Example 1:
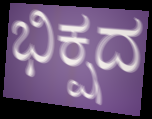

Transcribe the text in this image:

ಭಿಕ್ಷದ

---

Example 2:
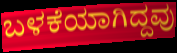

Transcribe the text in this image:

ಬಳಕೆಯಾಗಿದ್ದವು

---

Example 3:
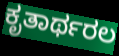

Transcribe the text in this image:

ಕೃತಾರ್ಥರಲ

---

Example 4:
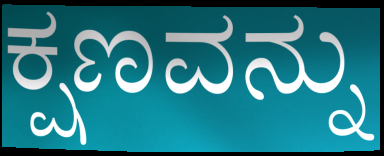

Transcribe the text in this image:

ಕ್ಷಣವನ್ನು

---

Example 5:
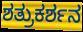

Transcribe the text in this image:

ಶತ್ರುಕರ್ಶನ